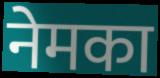
नेमका